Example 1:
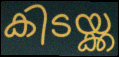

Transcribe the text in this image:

കിടയ്ക്ക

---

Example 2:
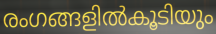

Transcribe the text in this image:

രംഗങ്ങളിൽകൂടിയും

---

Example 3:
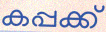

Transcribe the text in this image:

കപ്പക്ക്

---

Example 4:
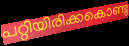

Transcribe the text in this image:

പറ്റിയിരിക്കകൊണ്ടു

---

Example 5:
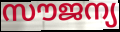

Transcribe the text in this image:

സൗജന്യ